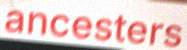
ancesters